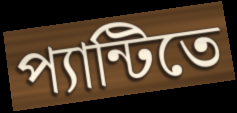
প্যান্টিতে